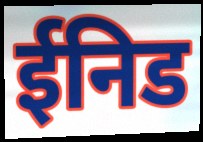
ईनिड